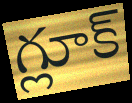
గ్లూక్